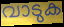
വാടുക